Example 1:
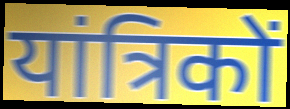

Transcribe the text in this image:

यांत्रिकों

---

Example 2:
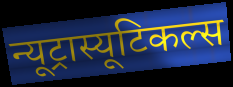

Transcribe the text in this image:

न्यूट्रास्यूटिकल्स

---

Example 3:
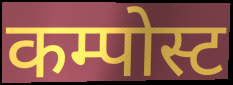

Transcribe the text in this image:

कम्पोस्ट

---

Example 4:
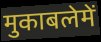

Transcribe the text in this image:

मुकाबलेमें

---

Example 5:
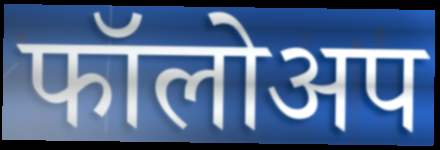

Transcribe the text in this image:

फॉलोअप